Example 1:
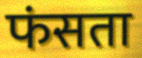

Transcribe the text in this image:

फंसता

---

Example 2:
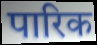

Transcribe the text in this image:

पारिक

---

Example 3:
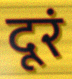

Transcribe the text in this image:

दूरं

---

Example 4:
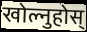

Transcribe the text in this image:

खोल्नुहोस्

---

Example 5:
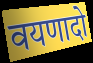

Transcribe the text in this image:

वयणादो